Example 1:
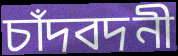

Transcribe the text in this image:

চাঁদবদনী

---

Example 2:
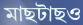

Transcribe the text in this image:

মাছটাছও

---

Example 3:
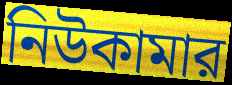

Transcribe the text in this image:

নিউকামার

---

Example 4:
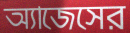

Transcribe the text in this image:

অ্যাজেসের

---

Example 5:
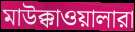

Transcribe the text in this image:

মাউক্কাওয়ালারা